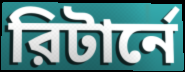
রিটার্নে